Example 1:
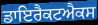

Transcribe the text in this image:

ਡਾਇਰੈਕਟਐਕਸ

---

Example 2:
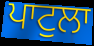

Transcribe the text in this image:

ਪਾਟੁਲਾ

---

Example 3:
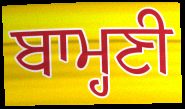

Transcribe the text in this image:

ਬਾਮ੍ਹਣੀ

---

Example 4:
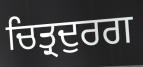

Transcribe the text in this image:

ਚਿਤ੍ਰਦੁਰਗ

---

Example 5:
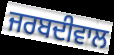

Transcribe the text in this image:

ਜਰਬਦੀਵਾਲ